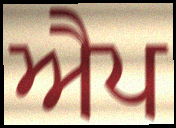
ਐਪ